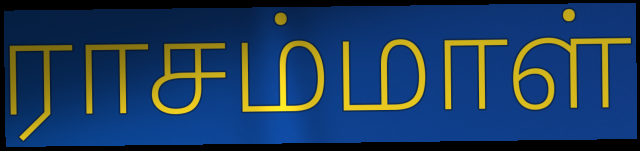
ராசம்மாள்